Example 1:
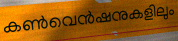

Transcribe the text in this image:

കൺവെൻഷനുകളിലും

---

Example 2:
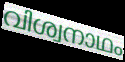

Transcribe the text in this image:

വിശ്വനാഥം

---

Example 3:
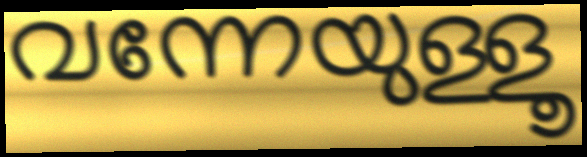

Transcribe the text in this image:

വന്നേയുള്ളൂ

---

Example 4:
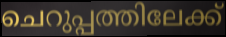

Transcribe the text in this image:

ചെറുപ്പത്തിലേക്ക്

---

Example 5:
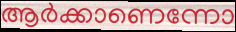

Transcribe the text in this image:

ആർക്കാണെന്നോ